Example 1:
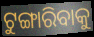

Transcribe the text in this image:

ଟୁଙ୍ଗାରିବାକୁ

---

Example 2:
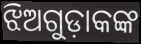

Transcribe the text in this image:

ଝିଅଗୁଡ଼ାକଙ୍କ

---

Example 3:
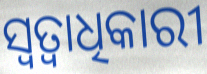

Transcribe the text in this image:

ସ୍ଵତ୍ୱାଧିକାରୀ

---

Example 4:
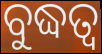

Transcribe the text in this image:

ବୁଦ୍ଧତ୍ୱ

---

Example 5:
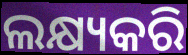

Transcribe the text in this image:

ଲକ୍ଷ୍ୟକରି